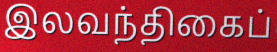
இலவந்திகைப்